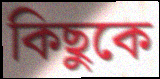
কিছুকে